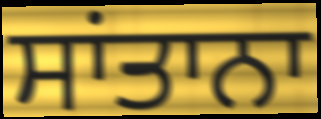
ਸਾਂਤਾਨਾ